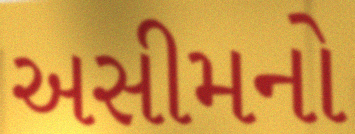
અસીમનો